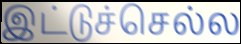
இட்டுச்செல்ல